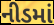
નીડમાં